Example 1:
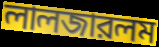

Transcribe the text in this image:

লালজারলম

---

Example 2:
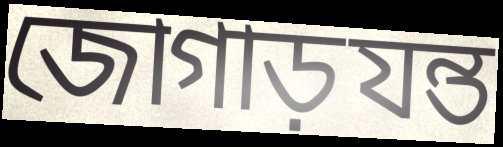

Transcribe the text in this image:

জোগাড়যন্ত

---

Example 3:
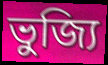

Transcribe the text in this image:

ভুজ্যি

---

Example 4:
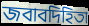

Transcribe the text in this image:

জবাবদিহিতা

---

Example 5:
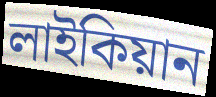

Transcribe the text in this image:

লাইকিয়ান